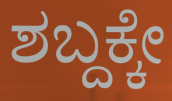
ಶಬ್ದಕ್ಕೇ